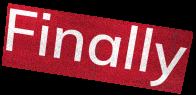
Finally